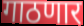
गाठणार